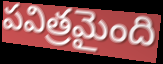
పవిత్రమైంది